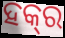
ହକ୍‌ର